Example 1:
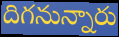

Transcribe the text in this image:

దిగనున్నారు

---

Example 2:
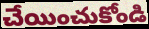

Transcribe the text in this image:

చేయించుకోండి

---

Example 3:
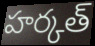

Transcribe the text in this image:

హర్కత్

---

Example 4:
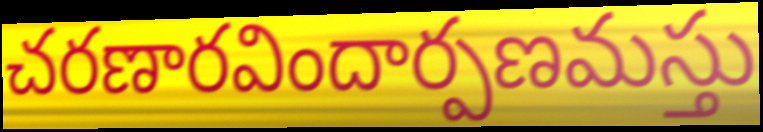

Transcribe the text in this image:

చరణారవిందార్పణమస్తు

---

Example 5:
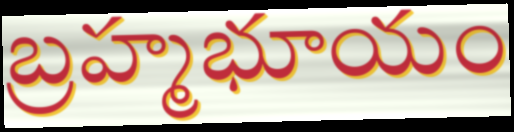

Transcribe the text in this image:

బ్రహ్మభూయం